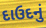
દાઉદનું